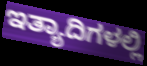
ಇತ್ಯಾದಿಗಳಲ್ಲಿ